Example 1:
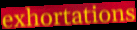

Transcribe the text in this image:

exhortations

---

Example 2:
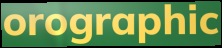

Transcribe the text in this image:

orographic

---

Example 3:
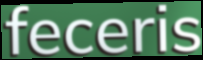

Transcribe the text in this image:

feceris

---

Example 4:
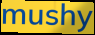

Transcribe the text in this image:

mushy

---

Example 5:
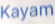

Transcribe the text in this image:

Kayam